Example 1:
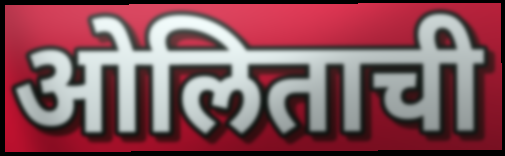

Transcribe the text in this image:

ओलिताची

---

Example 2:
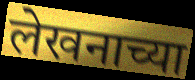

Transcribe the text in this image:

लेखनाच्या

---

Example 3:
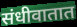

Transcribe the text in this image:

संधीवातात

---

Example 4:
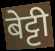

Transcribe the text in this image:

बेट्टी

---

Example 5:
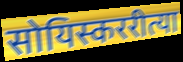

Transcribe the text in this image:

सोयिस्कररीत्या